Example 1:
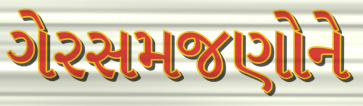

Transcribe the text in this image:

ગેરસમજણોને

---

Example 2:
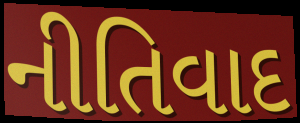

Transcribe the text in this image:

નીતિવાદ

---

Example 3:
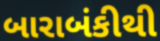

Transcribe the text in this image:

બારાબંકીથી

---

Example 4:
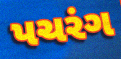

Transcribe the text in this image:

પચરંગ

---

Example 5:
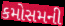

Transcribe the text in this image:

કમોસમની